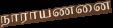
நாராயணனை